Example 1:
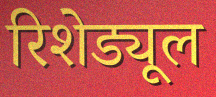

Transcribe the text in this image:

रिशेड्यूल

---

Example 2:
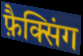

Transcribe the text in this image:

फ़ैक्सिंग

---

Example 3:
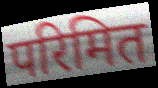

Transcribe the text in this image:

परिमित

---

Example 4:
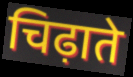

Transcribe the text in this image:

चिढ़ाते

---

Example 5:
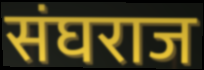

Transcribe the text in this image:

संघराज